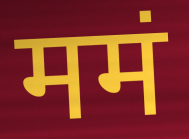
ममं